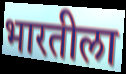
भारतीला